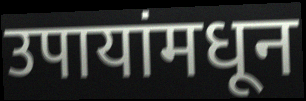
उपायांमधून